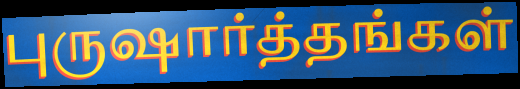
புருஷார்த்தங்கள்